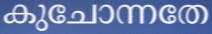
കുചോന്നതേ